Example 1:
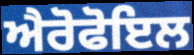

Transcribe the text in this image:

ਐਰੋਫੋਇਲ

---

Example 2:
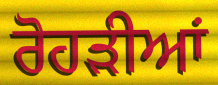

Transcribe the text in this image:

ਰੋਹੜੀਆਂ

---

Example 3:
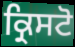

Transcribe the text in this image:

ਕ੍ਰਿਸਟੋ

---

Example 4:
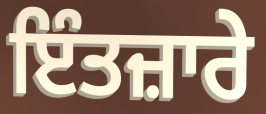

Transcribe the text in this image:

ਇੰਤਜ਼ਾਰੇ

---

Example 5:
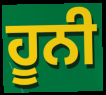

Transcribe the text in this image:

ਹੂਨੀ